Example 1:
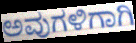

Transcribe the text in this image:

ಅವುಗಳಿಗಾಗಿ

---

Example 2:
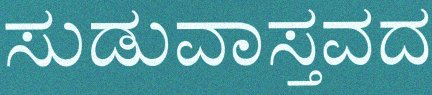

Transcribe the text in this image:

ಸುಡುವಾಸ್ತವದ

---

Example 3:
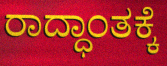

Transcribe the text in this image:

ರಾದ್ಧಾಂತಕ್ಕೆ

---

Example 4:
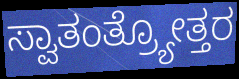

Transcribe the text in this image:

ಸ್ವಾತಂತ್ರ್ಯೋತ್ತರ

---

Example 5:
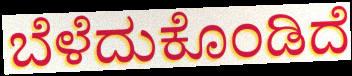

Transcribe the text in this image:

ಬೆಳೆದುಕೊಂಡಿದೆ